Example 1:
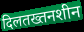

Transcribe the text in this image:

दिलतख्तनशीन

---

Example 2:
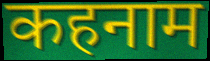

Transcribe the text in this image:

कहनाम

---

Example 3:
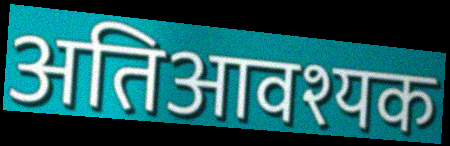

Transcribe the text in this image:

अतिआवश्यक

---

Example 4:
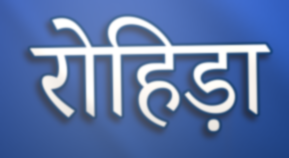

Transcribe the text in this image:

रोहिड़ा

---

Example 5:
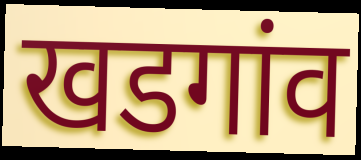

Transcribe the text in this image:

खडगांव